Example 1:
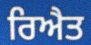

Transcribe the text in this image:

ਰਿਐਤ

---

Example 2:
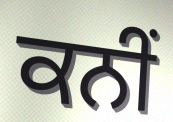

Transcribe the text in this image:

ਕਨੀਂ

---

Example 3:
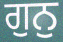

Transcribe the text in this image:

ਗੁਨੁ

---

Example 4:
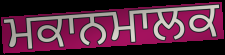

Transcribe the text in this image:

ਮਕਾਨਮਾਲਕ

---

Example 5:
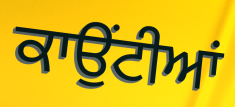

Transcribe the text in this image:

ਕਾਉਂਟੀਆਂ